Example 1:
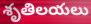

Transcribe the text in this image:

శృతిలయలు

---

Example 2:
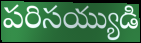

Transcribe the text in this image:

పరిసయ్యుడి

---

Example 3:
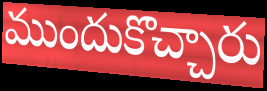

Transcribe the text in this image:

ముందుకొచ్చారు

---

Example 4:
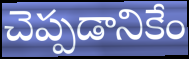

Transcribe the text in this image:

చెప్పడానికేం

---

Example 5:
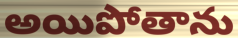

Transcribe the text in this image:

అయిపోతాను